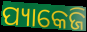
ପ୍ୟାକେଜି